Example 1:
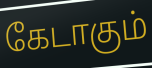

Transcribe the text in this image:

கேடாகும்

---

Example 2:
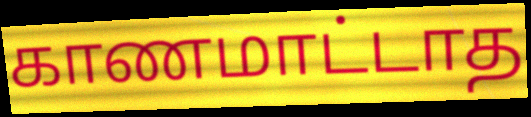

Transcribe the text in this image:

காணமாட்டாத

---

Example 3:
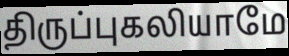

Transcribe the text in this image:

திருப்புகலியாமே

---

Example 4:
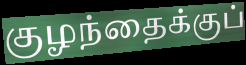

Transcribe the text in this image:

குழந்தைக்குப்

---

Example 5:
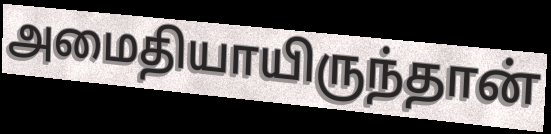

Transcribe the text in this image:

அமைதியாயிருந்தான்